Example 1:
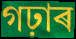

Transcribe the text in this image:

গঢ়াৰ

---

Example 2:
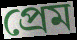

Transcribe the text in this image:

প্ৰেম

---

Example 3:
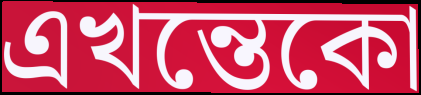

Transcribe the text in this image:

এখন্তেকো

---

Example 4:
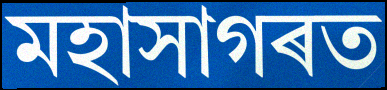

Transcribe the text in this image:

মহাসাগৰত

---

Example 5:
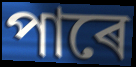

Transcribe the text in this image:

পাৰে